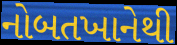
નોબતખાનેથી